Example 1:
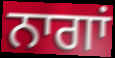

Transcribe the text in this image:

ਨਾਗਾਂ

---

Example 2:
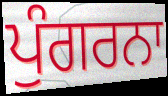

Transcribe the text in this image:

ਪੁੰਗਰਨਾ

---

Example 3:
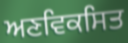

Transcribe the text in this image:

ਅਣਵਿਕਸਿਤ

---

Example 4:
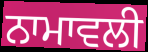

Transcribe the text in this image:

ਨਾਮਾਵਲੀ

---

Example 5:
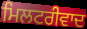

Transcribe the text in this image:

ਮਿਲਟਰੀਵਾਦ